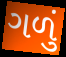
ગળું